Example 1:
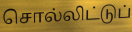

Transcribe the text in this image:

சொல்லிட்டுப்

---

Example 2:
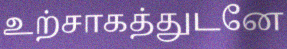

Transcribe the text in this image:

உற்சாகத்துடனே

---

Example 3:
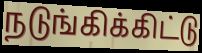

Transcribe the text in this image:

நடுங்கிக்கிட்டு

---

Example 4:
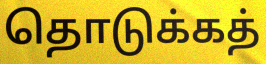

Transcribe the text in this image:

தொடுக்கத்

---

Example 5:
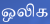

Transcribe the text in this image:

ஒலிக